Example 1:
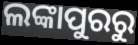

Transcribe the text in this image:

ଲଙ୍କାପୁରରୁ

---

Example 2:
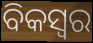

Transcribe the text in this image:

ବିକସ୍ୱର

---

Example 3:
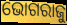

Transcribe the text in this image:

ଭୋଗରାଜୁ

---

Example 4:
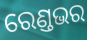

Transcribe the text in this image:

ରେଣ୍ଡଭର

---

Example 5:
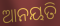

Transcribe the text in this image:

ଆନୟତି